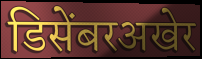
डिसेंबरअखेर